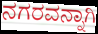
ನಗರವನ್ನಾಗಿ